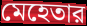
মেহেতার